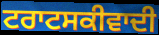
ਟਰਾਟਸਕੀਵਾਦੀ